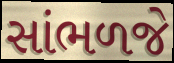
સાંભળજે